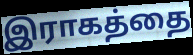
இராகத்தை